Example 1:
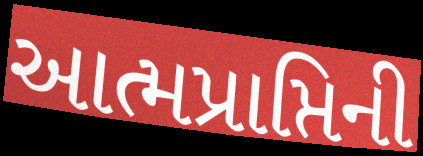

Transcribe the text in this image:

આત્મપ્રાપ્તિની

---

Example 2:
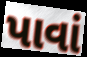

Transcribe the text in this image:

પાવાં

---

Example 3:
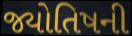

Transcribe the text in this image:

જ્યોતિષની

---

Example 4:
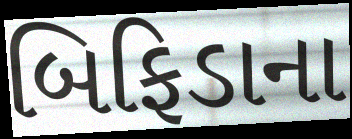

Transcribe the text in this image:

બિફિડાના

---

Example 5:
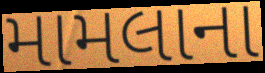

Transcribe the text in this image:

મામલાના